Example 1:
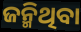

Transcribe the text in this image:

ଜନ୍ମିଥିବା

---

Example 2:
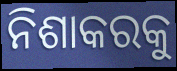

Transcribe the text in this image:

ନିଶାକରକୁ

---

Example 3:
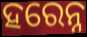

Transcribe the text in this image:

ହରେନ୍ନ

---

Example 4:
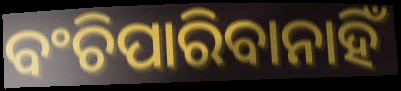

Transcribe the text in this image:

ବଂଚିପାରିବାନାହିଁ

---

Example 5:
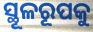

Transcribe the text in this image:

ସ୍ଥୂଳରୂପକୁ